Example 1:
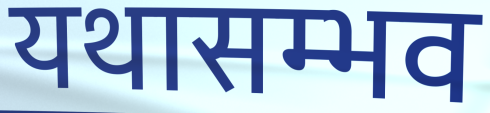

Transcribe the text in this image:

यथासम्भव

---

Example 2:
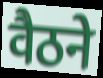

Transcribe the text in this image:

वैठने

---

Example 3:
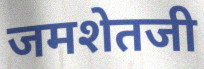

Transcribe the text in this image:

जमशेतजी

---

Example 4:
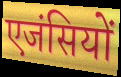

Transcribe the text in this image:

एजंसियों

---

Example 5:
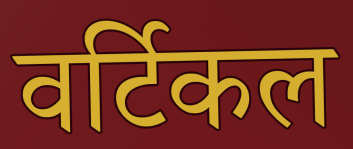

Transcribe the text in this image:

वर्टिकल